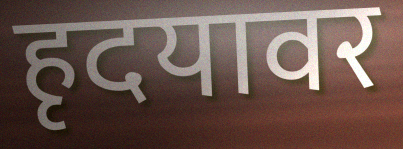
हृदयावर